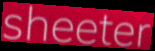
sheeter